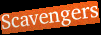
Scavengers